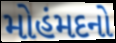
મોહંમદનો